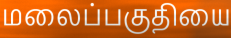
மலைப்பகுதியை